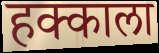
हक्काला